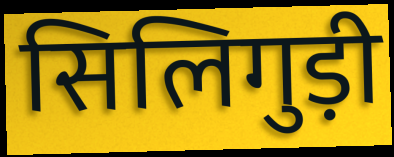
सिलिगुड़ी